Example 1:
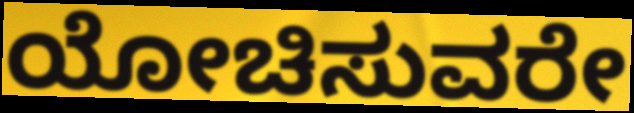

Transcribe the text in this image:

ಯೋಚಿಸುವರೇ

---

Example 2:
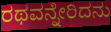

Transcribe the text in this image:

ರಥವನ್ನೇರಿದನು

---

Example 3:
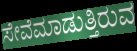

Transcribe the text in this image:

ಸೇವೆಮಾಡುತ್ತಿರುವ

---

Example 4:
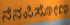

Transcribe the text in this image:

ನೆನಪಿಸೋಣ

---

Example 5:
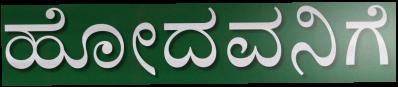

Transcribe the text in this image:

ಹೋದವನಿಗೆ